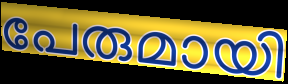
പേരുമായി